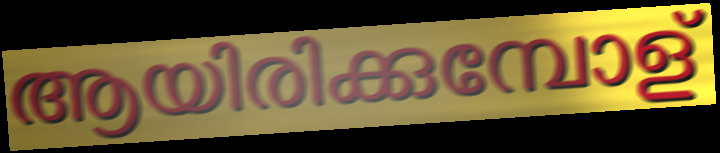
ആയിരിക്കുമ്പോള്